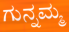
ಗುನ್ನಮ್ಮ